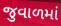
જુવાળમાં